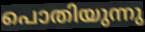
പൊതിയുന്നു